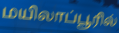
மயிலாப்பூரில்